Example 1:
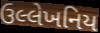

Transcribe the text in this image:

ઉલ્લેખનિય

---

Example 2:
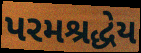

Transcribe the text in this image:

પરમશ્રદ્ધેય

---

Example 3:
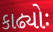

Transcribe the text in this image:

કાઢ્યોઃ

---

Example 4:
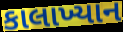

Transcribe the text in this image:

કાલાખ્યાન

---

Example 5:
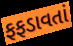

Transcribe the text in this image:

ફફડાવતાં